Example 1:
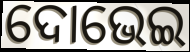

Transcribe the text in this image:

ଦୋଭେଇ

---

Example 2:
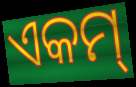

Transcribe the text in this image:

ଏକମ୍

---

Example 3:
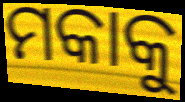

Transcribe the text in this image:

ମକାକୁ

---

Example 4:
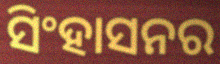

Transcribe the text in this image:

ସିଂହାସନର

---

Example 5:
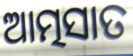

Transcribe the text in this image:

ଆତ୍ମସାତ